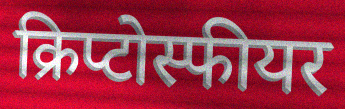
क्रिप्टोस्फीयर